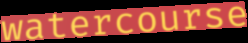
watercourse